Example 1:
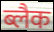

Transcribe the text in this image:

ब्‍लैक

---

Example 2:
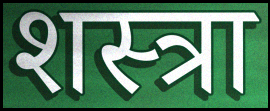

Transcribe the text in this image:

शस्त्रा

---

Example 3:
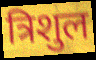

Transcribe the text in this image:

त्रिशुल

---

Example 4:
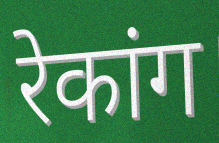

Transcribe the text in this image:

रेकांग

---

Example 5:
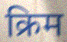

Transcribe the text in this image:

क्रिम